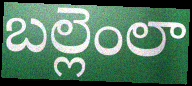
బల్లెంలా